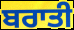
ਬਰਾਤੀ